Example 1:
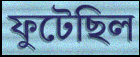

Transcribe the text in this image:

ফুটেছিল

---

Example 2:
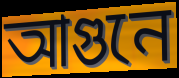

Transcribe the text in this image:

আগুনে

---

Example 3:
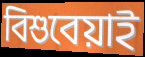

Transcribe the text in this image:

বিশুবেয়াই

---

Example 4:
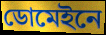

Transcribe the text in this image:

ডোমেইনে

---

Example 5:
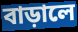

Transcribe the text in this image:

বাড়ালে